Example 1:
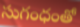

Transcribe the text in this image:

సుగంధంతో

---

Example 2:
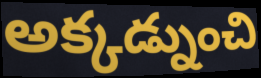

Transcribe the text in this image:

అక్కడ్నుంచి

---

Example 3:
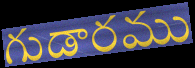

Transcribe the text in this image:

గుడారము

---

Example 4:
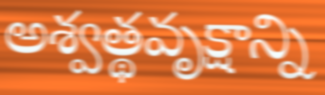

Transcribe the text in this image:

అశ్వత్థవృక్షాన్ని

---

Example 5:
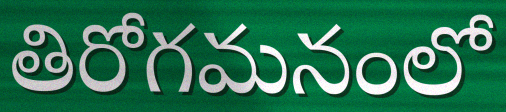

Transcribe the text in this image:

తిరోగమనంలో